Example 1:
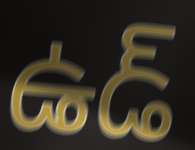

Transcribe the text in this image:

ఉడ్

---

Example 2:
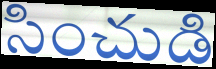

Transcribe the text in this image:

సించుడి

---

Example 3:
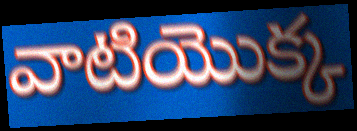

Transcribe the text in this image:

వాటియొక్క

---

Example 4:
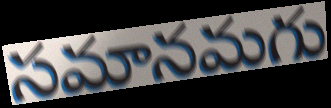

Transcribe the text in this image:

సమానమగు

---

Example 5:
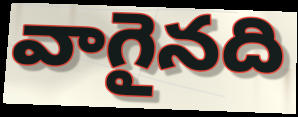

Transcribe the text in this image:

వాగైనది